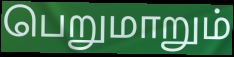
பெறுமாறும்